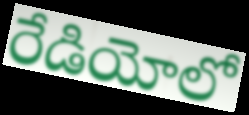
రేడియోలో